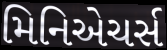
મિનિએચર્સ